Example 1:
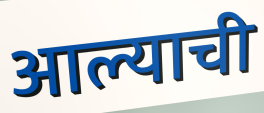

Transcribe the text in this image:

आल्याची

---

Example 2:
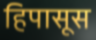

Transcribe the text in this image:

हिपासूस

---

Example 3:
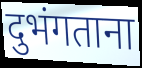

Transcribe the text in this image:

दुभंगताना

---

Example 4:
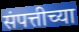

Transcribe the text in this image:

संपत्तीच्या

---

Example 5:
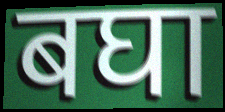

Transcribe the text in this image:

बघा